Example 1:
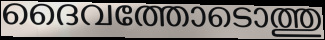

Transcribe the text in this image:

ദൈവത്തോടൊത്തു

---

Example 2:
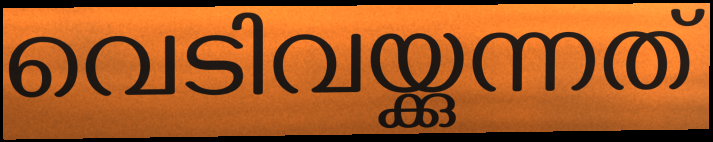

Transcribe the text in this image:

വെടിവയ്ക്കുന്നത്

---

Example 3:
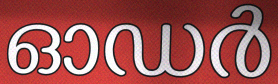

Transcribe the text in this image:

ഓഡർ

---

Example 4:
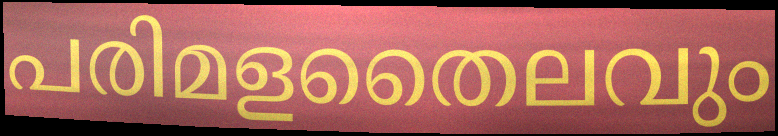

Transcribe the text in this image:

പരിമളതൈലവും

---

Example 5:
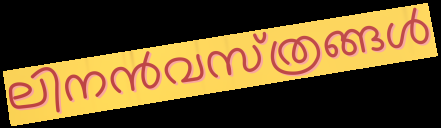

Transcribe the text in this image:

ലിനൻവസ്‌ത്രങ്ങൾ